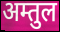
अम्तुल